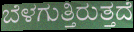
ಬೆಳಗುತ್ತಿರುತ್ತದೆ